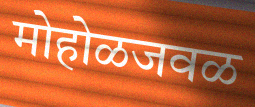
मोहोळजवळ